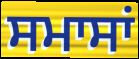
ਸਮਾਸਾਂ